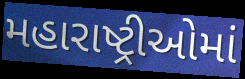
મહારાષ્ટ્રીઓમાં